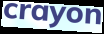
crayon